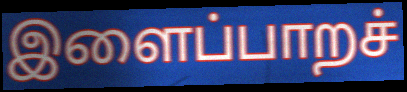
இளைப்பாறச்